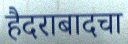
हैदराबादचा